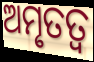
ଅମୃତତ୍ବ